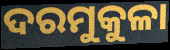
ଦରମୁକୁଳା